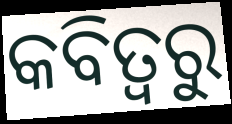
କବିତ୍ଵରୁ